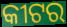
କୀଟର